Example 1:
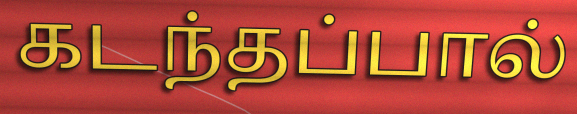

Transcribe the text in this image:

கடந்தப்பால்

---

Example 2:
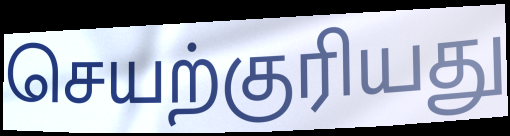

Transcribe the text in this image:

செயற்குரியது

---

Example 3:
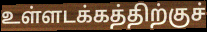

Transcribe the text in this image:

உள்ளடக்கத்திற்குச்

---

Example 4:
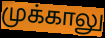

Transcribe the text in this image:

முக்காலு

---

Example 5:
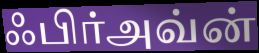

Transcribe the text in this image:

ஃபிர்அவ்ன்